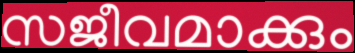
സജീവമാക്കും